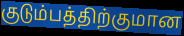
குடும்பத்திற்குமான